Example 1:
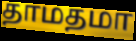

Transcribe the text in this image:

தாமதமா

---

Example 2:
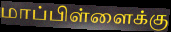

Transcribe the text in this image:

மாப்பிள்ளைக்கு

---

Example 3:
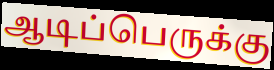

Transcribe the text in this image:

ஆடிப்பெருக்கு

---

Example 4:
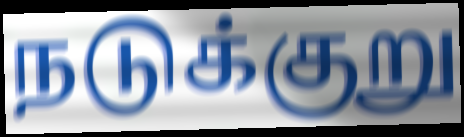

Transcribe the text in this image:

நடுக்குறு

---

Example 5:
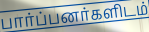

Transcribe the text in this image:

பார்ப்பனர்களிடம்